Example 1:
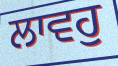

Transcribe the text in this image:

ਲਾਵਹੁ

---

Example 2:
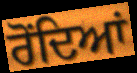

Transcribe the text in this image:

ਰੋਂਦਿਆਂ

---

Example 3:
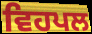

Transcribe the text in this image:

ਵਿਹਪਲ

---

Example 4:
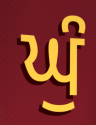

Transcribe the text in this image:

ਘੁੰ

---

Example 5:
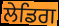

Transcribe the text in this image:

ਲੇਡਿਗ